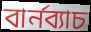
বার্নব্যাচ